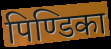
पिण्डिका